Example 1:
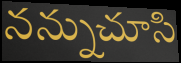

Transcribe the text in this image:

నన్నుచూసి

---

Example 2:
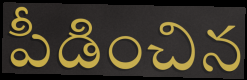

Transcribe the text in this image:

పీడించిన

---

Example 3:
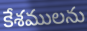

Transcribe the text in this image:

కేశములను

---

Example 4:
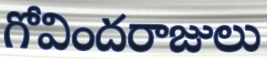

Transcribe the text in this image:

గోవిందరాజులు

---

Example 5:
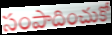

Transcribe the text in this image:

సంపాదించుకో